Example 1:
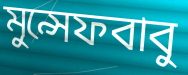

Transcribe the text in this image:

মুন্সেফবাবু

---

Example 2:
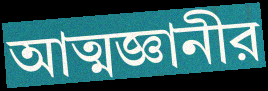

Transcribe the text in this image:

আত্মজ্ঞানীর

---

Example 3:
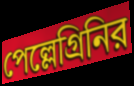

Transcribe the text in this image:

পেল্লেগ্রিনির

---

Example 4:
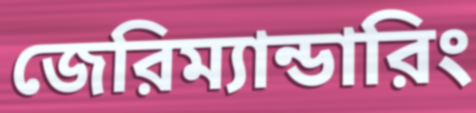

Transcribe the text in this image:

জেরিম্যান্ডারিং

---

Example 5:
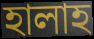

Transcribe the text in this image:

হালাহ